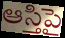
ఆస్తిపై